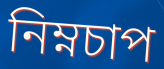
নিম্নচাপ